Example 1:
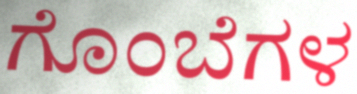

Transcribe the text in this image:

ಗೊಂಬೆಗಳ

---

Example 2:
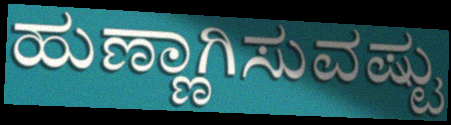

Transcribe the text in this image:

ಹುಣ್ಣಾಗಿಸುವಷ್ಟು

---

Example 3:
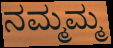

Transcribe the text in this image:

ನಮ್ಮಮ್ಮ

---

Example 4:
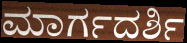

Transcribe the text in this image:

ಮಾರ್ಗದರ್ಶಿ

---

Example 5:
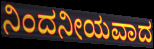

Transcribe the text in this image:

ನಿಂದನೀಯವಾದ